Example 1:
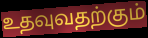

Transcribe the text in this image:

உதவுவதற்கும்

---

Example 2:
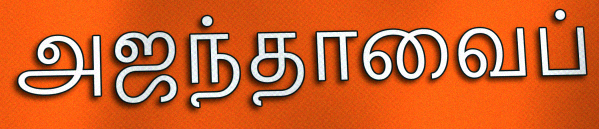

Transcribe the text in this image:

அஜந்தாவைப்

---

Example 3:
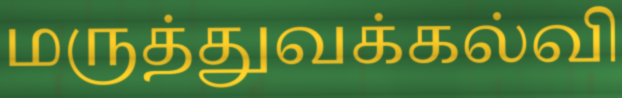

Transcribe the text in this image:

மருத்துவக்கல்வி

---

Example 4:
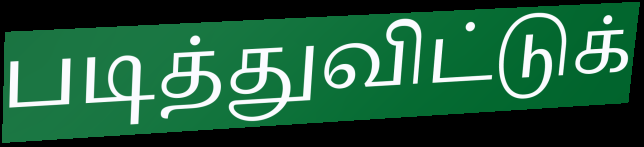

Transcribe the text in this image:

படித்துவிட்டுக்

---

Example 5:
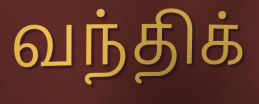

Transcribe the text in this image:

வந்திக்